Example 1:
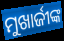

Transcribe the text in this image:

ମୁଖାର୍ଜୀଙ୍କ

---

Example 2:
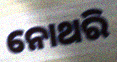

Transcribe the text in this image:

ନୋଥରି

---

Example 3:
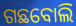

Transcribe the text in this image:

ଗଛବୋଲି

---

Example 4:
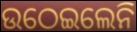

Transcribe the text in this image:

ଉଠେଇଲେନି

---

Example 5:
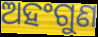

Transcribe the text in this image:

ଅହଂଗୁଣ